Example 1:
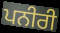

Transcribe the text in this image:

ਪਨੀਰੀ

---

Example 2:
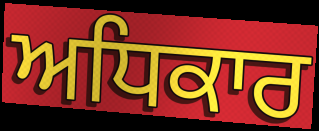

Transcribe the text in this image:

ਅਧਿਕਾਰ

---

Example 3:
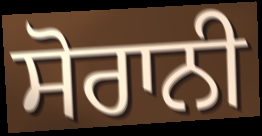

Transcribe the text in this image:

ਸੋਰਾਨੀ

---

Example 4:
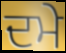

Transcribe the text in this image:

ਦਮੇ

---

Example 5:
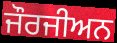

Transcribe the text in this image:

ਜੌਰਜੀਅਨ